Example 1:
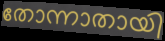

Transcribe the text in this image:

തോന്നാതായി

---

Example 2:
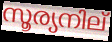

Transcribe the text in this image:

സൂര്യനില്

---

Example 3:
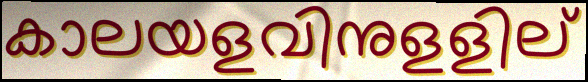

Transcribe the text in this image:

കാലയളവിനുളളില്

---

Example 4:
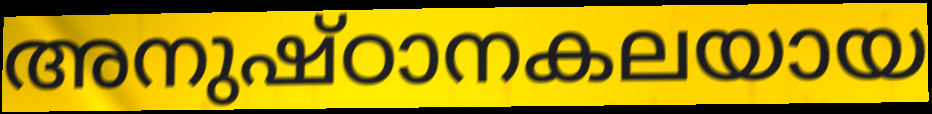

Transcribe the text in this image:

അനുഷ്ഠാനകലയായ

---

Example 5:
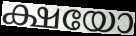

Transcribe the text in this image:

ക്ഷയോ